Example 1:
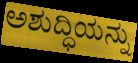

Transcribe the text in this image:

ಅಶುದ್ಧಿಯನ್ನು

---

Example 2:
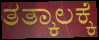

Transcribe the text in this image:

ತತ್ಕಾಲಕ್ಕೆ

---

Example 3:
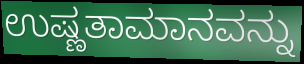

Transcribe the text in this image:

ಉಷ್ಣತಾಮಾನವನ್ನು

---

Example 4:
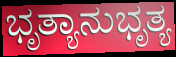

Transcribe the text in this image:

ಭೃತ್ಯಾನುಭೃತ್ಯ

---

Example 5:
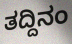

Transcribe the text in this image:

ತದ್ದಿನಂ